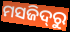
ମସଜିଦ୍‌ରୁ